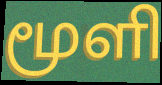
மூளி